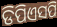
ଡିପିଏସପି